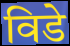
विडे